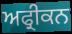
ਅਫ੍ਰੀਕਨ